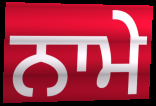
ਨਾਮੇ